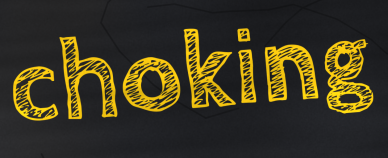
choking